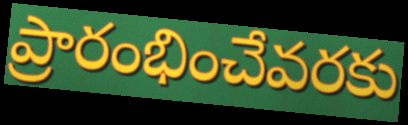
ప్రారంభించేవరకు